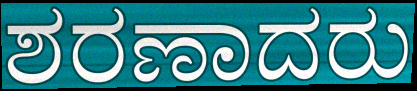
ಶರಣಾದರು